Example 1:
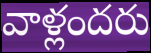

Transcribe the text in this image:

వాళ్లందరు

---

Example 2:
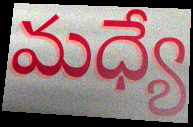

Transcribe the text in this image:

మధ్యే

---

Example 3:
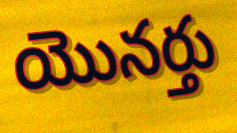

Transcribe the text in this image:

యొనర్తు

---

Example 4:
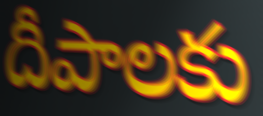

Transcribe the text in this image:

దీపాలకు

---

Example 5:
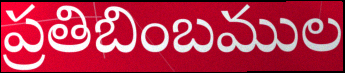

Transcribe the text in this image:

ప్రతిబింబముల